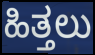
ಹಿತ್ತಲು